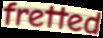
fretted